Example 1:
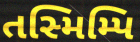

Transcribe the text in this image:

તસ્મિમ્પિ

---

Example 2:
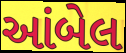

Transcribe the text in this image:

આંબેલ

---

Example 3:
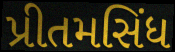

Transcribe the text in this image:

પ્રીતમસિંધ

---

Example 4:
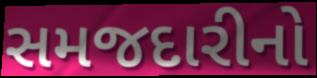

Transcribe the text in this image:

સમજદારીનો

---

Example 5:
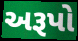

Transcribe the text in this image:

અરૂપો